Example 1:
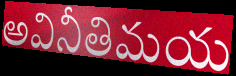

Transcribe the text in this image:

అవినీతిమయ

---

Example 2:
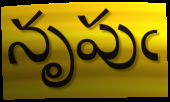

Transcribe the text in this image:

నృపుఁ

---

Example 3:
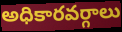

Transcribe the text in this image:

అధికారవర్గాలు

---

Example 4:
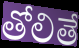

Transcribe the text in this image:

తోలితే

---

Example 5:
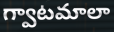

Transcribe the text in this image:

గ్వాటమాలా